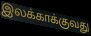
இலக்காக்குவது